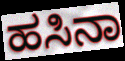
ಹಸಿನಾ